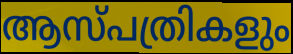
ആസ്പത്രികളും